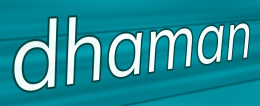
dhaman